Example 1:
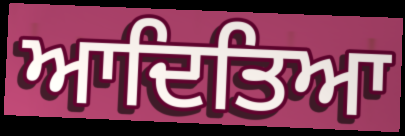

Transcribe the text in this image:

ਆਦਿਤਿਆ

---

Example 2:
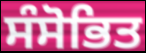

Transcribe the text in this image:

ਸੰਸੋਭਿਤ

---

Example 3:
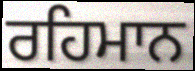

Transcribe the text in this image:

ਰਹਿਮਾਨ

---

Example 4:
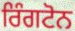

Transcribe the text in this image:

ਰਿੰਗਟੋਨ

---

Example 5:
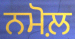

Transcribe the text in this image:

ਨਮੋਲ਼